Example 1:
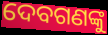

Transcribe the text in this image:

ଦେବଗଣଙ୍କୁ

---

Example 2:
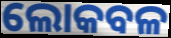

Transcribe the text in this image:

ଲୋକବଳ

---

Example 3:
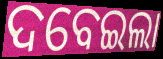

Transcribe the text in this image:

ଦବେଇଲା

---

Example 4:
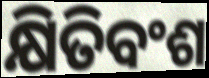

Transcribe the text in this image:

କ୍ଷିତିବଂଶ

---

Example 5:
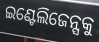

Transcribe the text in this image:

ଇଣ୍ଟେଲିଜେନ୍ସକୁ